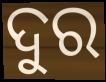
ଦୁର